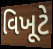
વિખૂટે